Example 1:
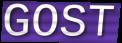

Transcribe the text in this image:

GOST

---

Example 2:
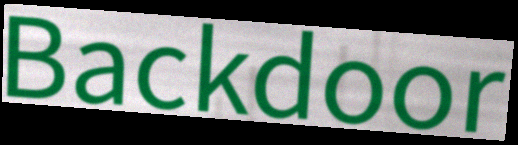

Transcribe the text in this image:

Backdoor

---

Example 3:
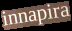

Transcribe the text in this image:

innapira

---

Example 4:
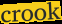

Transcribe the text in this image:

crook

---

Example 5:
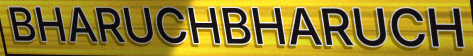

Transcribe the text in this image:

BHARUCHBHARUCH